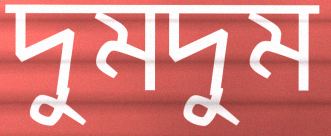
দুমদুম